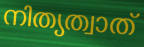
നിത്യത്വാത്